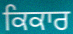
ਕਿਕਾਰ